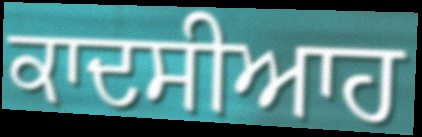
ਕਾਦਸੀਆਹ